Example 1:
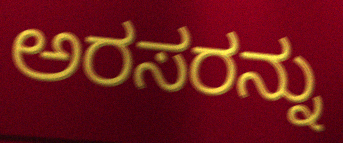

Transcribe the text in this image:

ಅರಸರನ್ನು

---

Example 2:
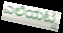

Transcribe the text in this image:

ಎಲಿಯಟ್ನ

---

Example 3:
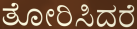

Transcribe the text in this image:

ತೋರಿಸಿದರೆ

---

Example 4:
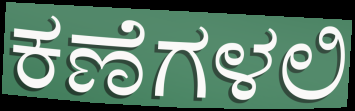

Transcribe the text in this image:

ಕಣೆಗಳಲಿ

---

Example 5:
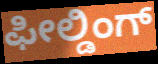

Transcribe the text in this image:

ಫೀಲ್ಡಿಂಗ್